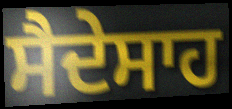
ਸੈਦੇਸਾਹ